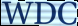
WDC